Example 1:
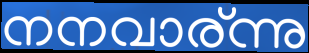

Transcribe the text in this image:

നനവാര്ന്നു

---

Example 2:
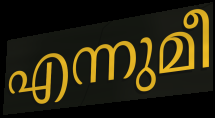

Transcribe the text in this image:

എന്നുമീ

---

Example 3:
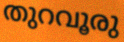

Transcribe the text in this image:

തുറവൂരു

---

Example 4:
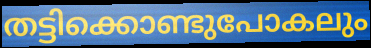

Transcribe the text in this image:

തട്ടിക്കൊണ്ടുപോകലും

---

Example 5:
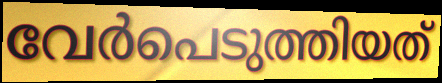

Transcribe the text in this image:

വേർപെടുത്തിയത്